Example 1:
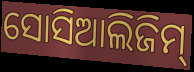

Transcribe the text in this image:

ସୋସିଆଲିଜିମ୍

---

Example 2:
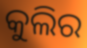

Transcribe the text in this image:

କୁଲିର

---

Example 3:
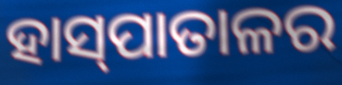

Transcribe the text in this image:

ହାସ୍‍ପାତାଳର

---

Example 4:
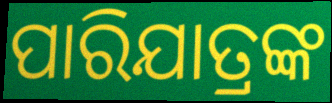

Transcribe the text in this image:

ପାରିଯାତ୍ରଙ୍କ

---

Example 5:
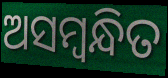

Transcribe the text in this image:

ଅସମ୍ବନ୍ଧିତ